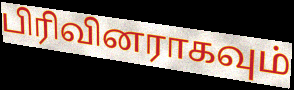
பிரிவினராகவும்